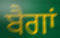
ਬੈਗਾਂ